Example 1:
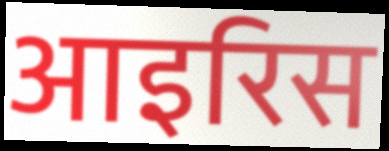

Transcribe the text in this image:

आइरिस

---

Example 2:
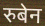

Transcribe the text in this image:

रुबेन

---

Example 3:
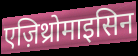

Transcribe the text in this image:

एज़िथ्रोमाइसिन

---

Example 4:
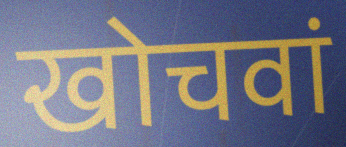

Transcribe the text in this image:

खोचवां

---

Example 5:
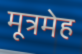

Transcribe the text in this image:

मूत्रमेह